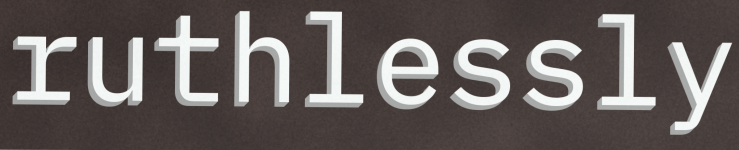
ruthlessly